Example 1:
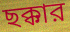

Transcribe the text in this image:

ছক্কার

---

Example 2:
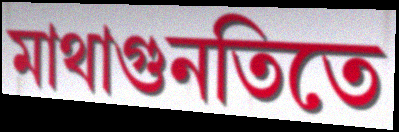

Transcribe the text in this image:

মাথাগুনতিতে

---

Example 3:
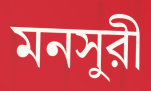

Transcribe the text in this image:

মনসুরী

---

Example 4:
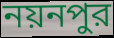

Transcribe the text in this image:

নয়নপুর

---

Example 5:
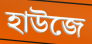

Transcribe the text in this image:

হাউজে